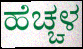
ಹೆಚ್ಚಳ